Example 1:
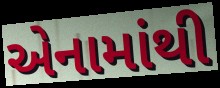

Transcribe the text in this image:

એનામાંથી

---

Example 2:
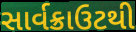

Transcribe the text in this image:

સાર્વક્રાઉટથી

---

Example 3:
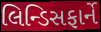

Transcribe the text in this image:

લિન્ડિસફાર્ને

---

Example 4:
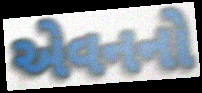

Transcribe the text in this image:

એવનનો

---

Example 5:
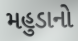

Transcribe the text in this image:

મહુડાનો